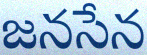
జనసేన